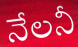
నేలనీ